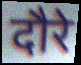
दौरे